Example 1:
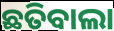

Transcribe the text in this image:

ଛତିବାଲା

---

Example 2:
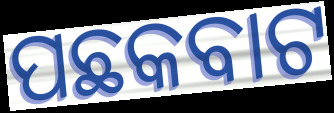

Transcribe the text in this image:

ପଛକବାଟ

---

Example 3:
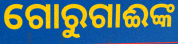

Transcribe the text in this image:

ଗୋରୁଗାଈଙ୍କ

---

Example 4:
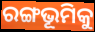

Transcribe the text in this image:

ରଙ୍ଗଭୂମିକୁ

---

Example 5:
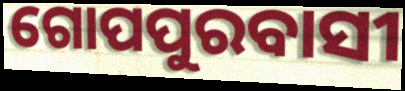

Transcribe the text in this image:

ଗୋପପୁରବାସୀ